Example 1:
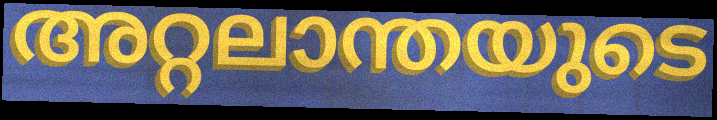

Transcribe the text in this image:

അറ്റലാന്തയുടെ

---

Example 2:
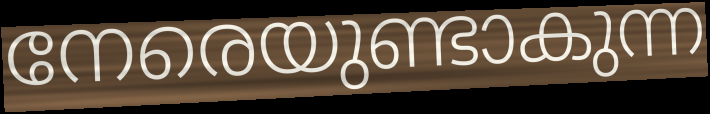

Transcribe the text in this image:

നേരെയുണ്ടാകുന്ന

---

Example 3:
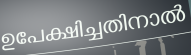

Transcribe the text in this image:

ഉപേക്ഷിച്ചതിനാൽ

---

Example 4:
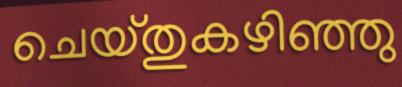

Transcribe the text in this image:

ചെയ്തുകഴിഞ്ഞു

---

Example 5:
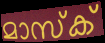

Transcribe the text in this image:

മാസ്ക്